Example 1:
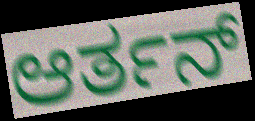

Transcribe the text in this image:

ಆರ್ತನ್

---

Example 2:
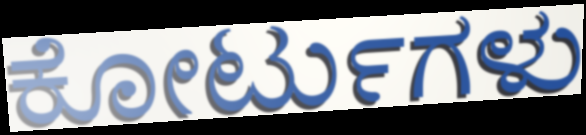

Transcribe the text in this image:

ಕೋರ್ಟುಗಳು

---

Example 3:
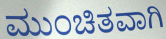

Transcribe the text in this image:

ಮುಂಚಿತವಾಗಿ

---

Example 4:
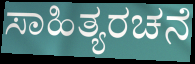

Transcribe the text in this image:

ಸಾಹಿತ್ಯರಚನೆ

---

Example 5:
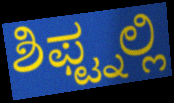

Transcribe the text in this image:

ಶಿಫ್ಟ್ನಲ್ಲಿ